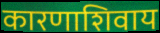
कारणाशिवाय